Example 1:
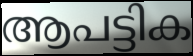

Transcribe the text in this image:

ആപട്ടിക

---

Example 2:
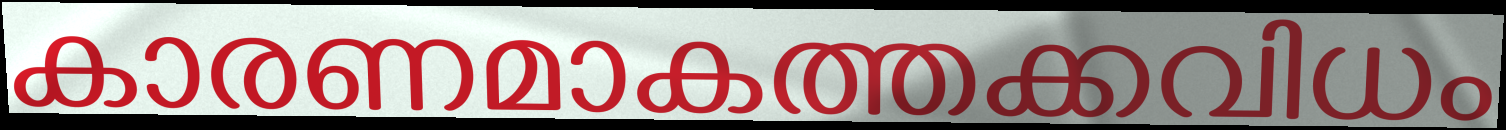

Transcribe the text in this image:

കാരണമാകത്തക്കവിധം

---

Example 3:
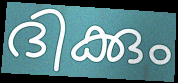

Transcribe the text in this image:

ദിക്കും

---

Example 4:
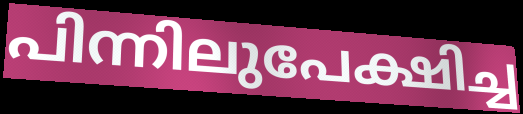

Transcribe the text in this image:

പിന്നിലുപേക്ഷിച്ച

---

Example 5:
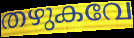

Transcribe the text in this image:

തഴുകവേ